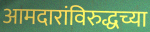
आमदारांविरुद्धच्या